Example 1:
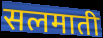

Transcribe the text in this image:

सलमाती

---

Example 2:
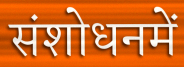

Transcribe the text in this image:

संशोधनमें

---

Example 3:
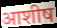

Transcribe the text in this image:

आशीष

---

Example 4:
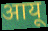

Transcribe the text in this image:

आयू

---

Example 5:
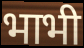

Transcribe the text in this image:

भाभी